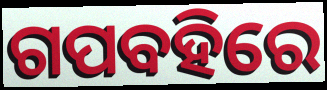
ଗପବହିରେ